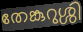
തേങ്കുറുശ്ശി